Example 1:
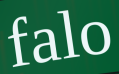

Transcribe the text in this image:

falo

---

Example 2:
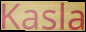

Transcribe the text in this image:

Kasla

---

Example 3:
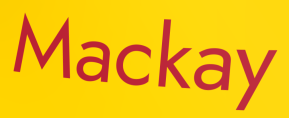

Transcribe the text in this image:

Mackay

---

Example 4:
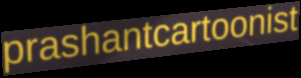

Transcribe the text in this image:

prashantcartoonist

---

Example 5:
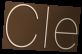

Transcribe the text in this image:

Cle